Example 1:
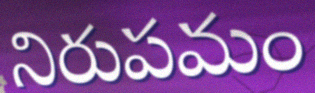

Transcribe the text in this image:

నిరుపమం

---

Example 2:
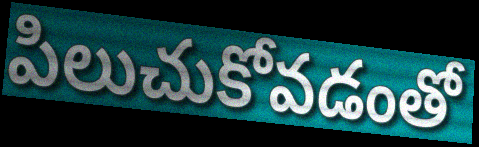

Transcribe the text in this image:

పిలుచుకోవడంతో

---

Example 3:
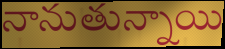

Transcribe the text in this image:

నానుతున్నాయి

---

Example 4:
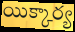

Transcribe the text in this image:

యిక్కార్య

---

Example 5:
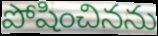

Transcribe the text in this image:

పోషించినను